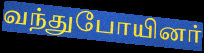
வந்துபோயினர்